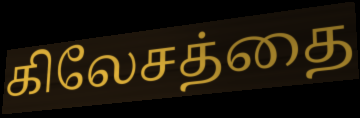
கிலேசத்தை